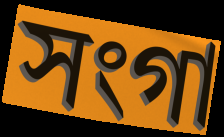
সংগা